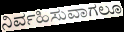
ನಿರ್ವಹಿಸುವಾಗಲೂ